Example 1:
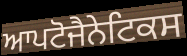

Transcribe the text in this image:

ਆਪਟੋਜੈਨੇਟਿਕਸ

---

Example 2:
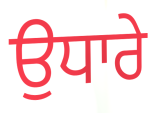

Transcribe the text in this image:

ਉਧਾਰੇ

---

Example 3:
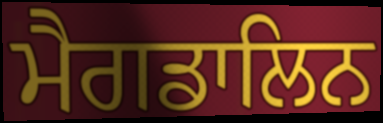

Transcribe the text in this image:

ਮੈਗਡਾਲਿਨ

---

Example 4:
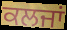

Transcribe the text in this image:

ਕਲਜਾਂ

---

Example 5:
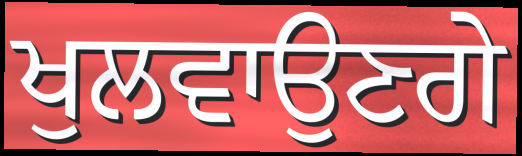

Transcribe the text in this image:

ਖੁਲਵਾਉਣਗੇ